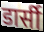
डार्सी